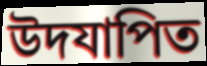
উদযাপিত